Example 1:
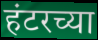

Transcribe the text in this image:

हंटरच्या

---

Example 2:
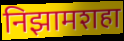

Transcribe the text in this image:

निझामशहा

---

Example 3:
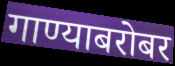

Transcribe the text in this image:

गाण्याबरोबर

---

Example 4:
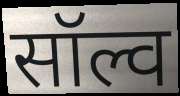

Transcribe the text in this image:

सॉल्व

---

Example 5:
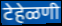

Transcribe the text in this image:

टेहेळणी